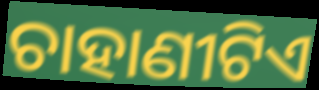
ଚାହାଣୀଟିଏ